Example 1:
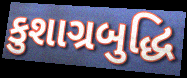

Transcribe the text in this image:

કુશાગ્રબુદ્ધિ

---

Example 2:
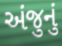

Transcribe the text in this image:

અંજુનું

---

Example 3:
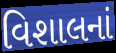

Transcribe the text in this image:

વિશાલનાં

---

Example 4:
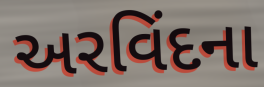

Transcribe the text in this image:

અરવિંદના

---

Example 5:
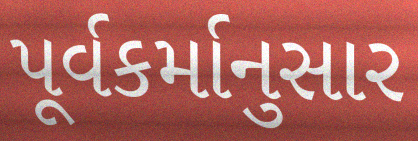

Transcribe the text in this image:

પૂર્વકર્માનુસાર